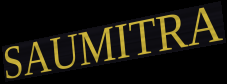
SAUMITRA